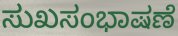
ಸುಖಸಂಭಾಷಣೆ